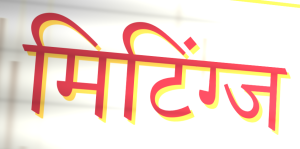
मिटिंग्ज